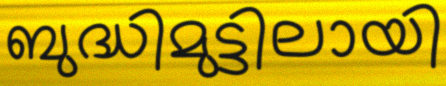
ബുദ്ധിമുട്ടിലായി